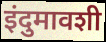
इंदुमावशी